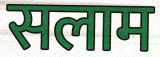
सलाम